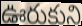
ఊరుకుని